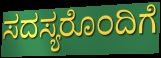
ಸದಸ್ಯರೊಂದಿಗೆ